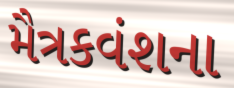
મૈત્રકવંશના